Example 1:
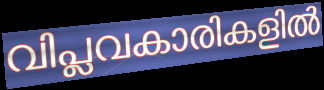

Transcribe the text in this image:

വിപ്ലവകാരികളിൽ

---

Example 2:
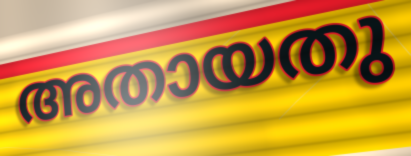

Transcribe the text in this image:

അതായതു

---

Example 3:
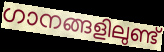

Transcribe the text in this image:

ഗാനങ്ങളിലുണ്ട്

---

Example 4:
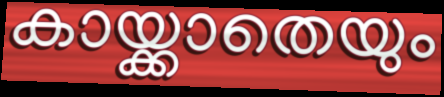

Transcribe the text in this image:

കായ്ക്കാതെയും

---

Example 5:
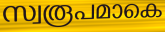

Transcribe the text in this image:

സ്വരൂപമാകെ